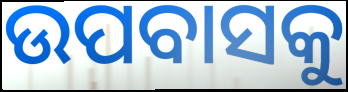
ଉପବାସକୁ